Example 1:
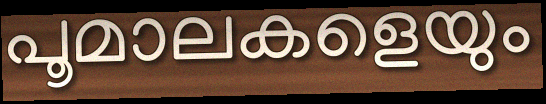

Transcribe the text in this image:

പൂമാലകളെയും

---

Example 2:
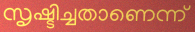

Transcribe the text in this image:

സൃഷ്ടിച്ചതാണെന്ന്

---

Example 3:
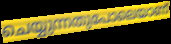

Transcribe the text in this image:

ചെയ്യുന്നതുപോലെയാണ്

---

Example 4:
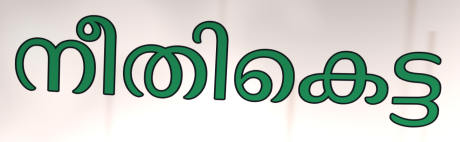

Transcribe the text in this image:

നീതികെട്ട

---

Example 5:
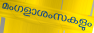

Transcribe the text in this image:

മംഗളാശംസകളും